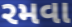
રમવા